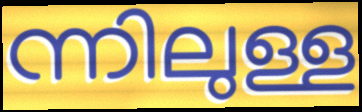
ന്നിലുള്ള